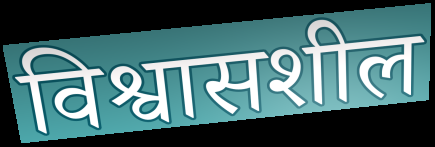
विश्वासशील